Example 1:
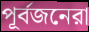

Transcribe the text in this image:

পূর্বজনেরা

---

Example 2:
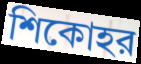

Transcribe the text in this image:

শিকোহর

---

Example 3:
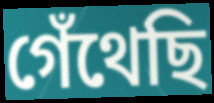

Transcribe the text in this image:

গেঁথেছি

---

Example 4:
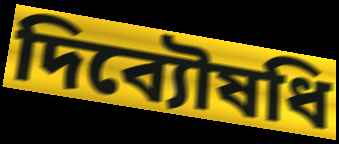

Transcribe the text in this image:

দিব্যৌষধি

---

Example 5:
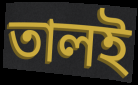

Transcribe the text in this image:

তালই